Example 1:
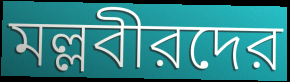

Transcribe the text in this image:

মল্লবীরদের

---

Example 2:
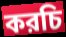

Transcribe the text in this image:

করচি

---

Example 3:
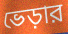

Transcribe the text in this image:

ভেড়ার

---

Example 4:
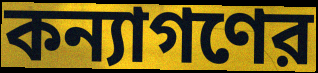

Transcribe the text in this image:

কন্যাগণের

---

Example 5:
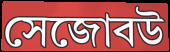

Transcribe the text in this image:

সেজোবউ